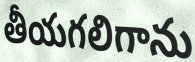
తీయగలిగాను